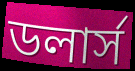
ডলার্স